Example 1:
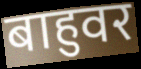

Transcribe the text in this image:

बाहुवर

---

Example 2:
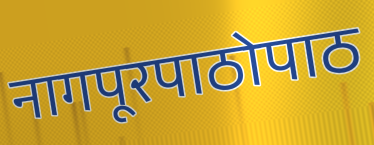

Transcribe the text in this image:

नागपूरपाठोपाठ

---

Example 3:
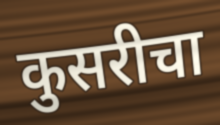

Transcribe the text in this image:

कुसरीचा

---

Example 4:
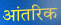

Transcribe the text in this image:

आंतरिक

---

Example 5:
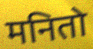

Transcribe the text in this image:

मनितो